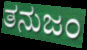
ತನುಜಂ